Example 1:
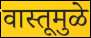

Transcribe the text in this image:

वास्तूमुळे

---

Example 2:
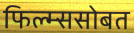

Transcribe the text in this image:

फिल्म्ससोबत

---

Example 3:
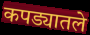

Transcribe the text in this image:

कपड्यातले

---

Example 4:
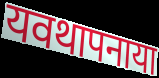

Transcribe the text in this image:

यवथापनाया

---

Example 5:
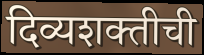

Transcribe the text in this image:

दिव्यशक्तीची